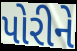
પોરીને